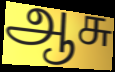
ஆசு